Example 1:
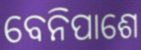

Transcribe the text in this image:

ବେନିପାଶେ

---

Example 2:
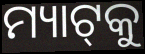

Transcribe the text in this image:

ମ୍ୟାଟ୍‌କୁ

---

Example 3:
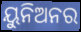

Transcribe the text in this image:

ୟୁନିଅନର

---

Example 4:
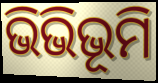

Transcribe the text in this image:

ଭିଭିଭୂମି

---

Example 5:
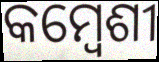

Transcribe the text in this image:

କମ୍ବେଶୀ